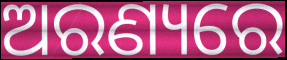
ଅରଣ୍ୟରେ